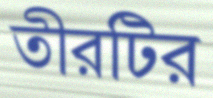
তীরটির